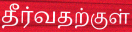
தீர்வதற்குள்